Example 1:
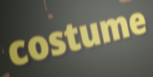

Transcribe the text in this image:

costume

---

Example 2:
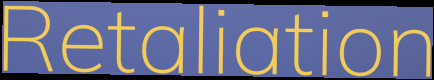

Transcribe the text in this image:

Retaliation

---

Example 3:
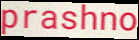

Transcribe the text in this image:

prashno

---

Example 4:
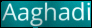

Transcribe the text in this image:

Aaghadi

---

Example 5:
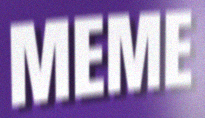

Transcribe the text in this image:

MEME